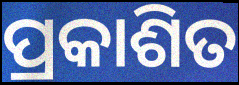
ପ୍ରକାଶିତ